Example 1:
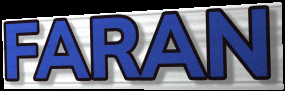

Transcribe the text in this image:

FARAN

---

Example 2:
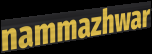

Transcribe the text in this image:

nammazhwar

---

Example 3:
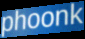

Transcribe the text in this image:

phoonk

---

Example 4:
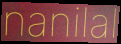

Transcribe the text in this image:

nanilal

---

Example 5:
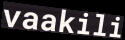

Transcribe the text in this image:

vaakili